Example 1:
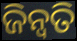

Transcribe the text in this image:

ଜିନ୍ୱତି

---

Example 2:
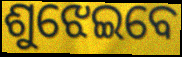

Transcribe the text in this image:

ଶୁଝେଇବେ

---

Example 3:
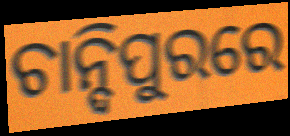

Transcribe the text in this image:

ଚାନ୍ଦିପୁରରେ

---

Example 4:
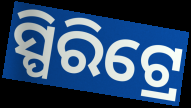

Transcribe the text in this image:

ସ୍ପିରିଟ୍ରେ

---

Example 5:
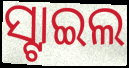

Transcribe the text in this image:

ସ୍ଟାଇଲ